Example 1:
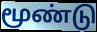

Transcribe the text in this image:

மூண்டு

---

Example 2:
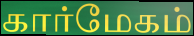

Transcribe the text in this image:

கார்மேகம்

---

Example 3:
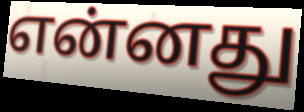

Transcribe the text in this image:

என்னது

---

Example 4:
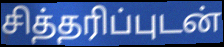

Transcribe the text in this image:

சித்தரிப்புடன்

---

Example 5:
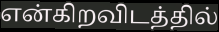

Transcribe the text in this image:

என்கிறவிடத்தில்